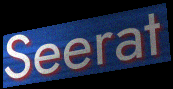
Seerat